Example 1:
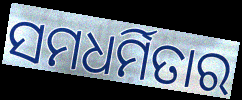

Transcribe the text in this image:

ସମଧର୍ମିତାର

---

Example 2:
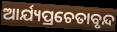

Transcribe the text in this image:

ଆର୍ଯ୍ୟପ୍ରଚେତାବୃନ୍ଦ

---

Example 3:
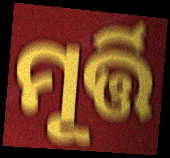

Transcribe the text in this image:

ମୂର୍ତ୍ତି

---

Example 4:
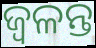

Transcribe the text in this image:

ଜ୍ବଳନ୍ତ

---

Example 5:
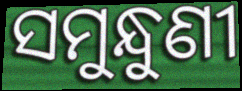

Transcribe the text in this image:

ସମୁନ୍ଧୁଣୀ